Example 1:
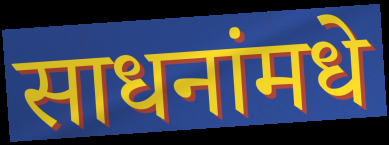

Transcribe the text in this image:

साधनांमधे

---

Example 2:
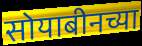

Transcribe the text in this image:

सोयाबीनच्या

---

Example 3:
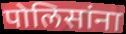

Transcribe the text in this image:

पोलिसांना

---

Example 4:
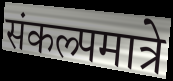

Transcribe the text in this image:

संकल्पमात्रे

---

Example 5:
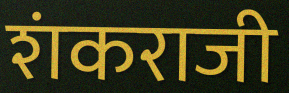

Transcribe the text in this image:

शंकराजी